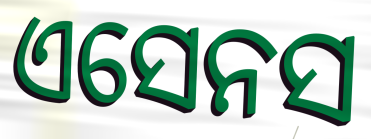
ଏସେନସ